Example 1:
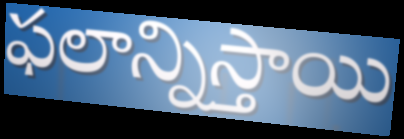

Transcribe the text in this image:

ఫలాన్నిస్తాయి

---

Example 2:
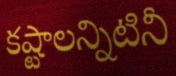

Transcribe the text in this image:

కష్టాలన్నిటినీ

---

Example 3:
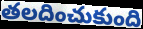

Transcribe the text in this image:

తలదించుకుంది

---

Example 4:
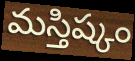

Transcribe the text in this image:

మస్తిష్కం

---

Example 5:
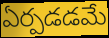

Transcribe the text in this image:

ఏర్పడడమే